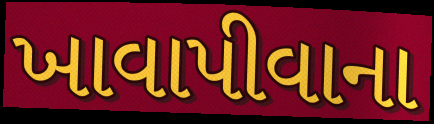
ખાવાપીવાના